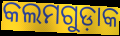
କଲମଗୁଡ଼ାକ